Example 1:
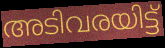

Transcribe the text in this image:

അടിവരയിട്ട്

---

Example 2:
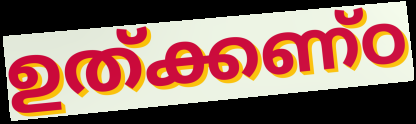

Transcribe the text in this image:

ഉത്ക്കണ്ഠ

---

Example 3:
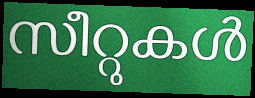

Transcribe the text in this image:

സീറ്റുകൾ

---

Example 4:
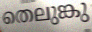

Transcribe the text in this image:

തെലുങ്കു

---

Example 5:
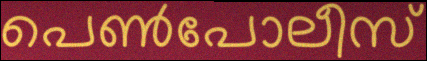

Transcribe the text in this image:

പെൺപോലീസ്